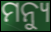
ମନ୍ୟୁ